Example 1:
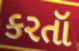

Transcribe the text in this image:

કરતૉ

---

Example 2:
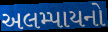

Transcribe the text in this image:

અલમ્પાયનો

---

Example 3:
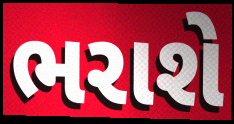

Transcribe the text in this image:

ભરાશે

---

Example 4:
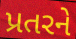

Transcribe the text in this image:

પ્રતરને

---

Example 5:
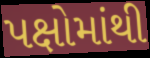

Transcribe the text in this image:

પક્ષોમાંથી